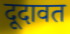
दूदावत